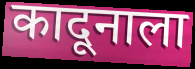
कादूनाला